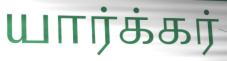
யார்க்கர்